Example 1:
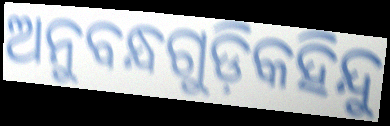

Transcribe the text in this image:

ଅନୁବନ୍ଧଗୁଡ଼ିକହିନ୍ଦୁ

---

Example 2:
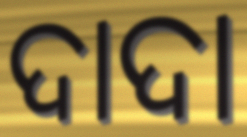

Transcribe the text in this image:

ଦାଦା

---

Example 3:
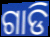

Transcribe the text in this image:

ଗାଡି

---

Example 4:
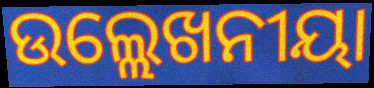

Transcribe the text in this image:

ଉଲ୍ଲେଖନୀୟା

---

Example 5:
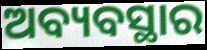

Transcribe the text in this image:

ଅବ୍ୟବସ୍ଥାର